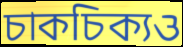
চাকচিক্যও